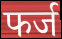
फर्ज